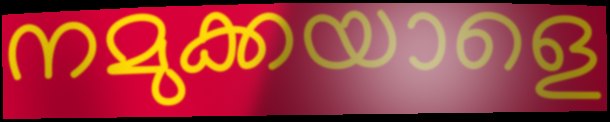
നമുക്കയാളെ